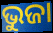
ଭୁଜା